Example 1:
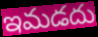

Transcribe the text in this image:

ఇమడదు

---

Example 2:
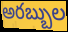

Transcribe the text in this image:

అరబ్బుల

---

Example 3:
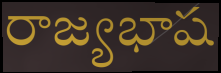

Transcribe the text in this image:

రాజ్యభాష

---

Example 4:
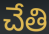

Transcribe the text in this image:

చేతి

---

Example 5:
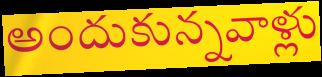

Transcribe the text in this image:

అందుకున్నవాళ్లు